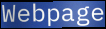
Webpage